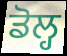
ਡੋਲ੍ਹ